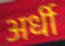
अर्धी